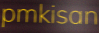
pmkisan